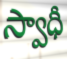
స్వాధీ